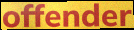
offender